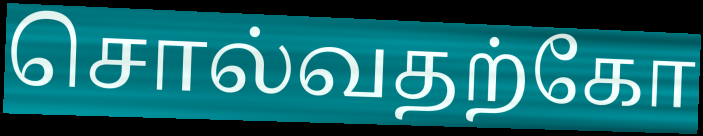
சொல்வதற்கோ